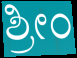
ಶ್ರೀಂ